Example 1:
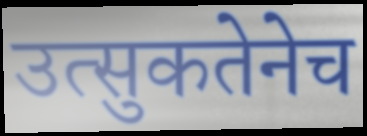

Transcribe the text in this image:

उत्सुकतेनेच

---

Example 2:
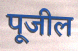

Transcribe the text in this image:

पूजील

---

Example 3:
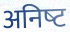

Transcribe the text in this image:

अनिष्‍ट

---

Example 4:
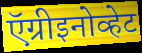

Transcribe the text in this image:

ऍग्रीइनोव्हेट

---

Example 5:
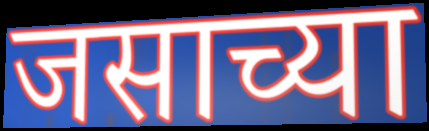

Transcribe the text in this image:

जसाच्या